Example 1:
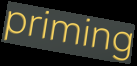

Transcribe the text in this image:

priming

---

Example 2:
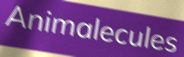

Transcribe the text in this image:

Animalecules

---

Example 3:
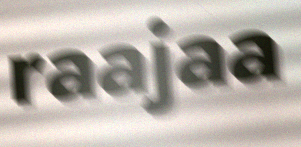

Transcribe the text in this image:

raajaa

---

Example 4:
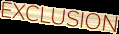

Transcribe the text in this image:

EXCLUSION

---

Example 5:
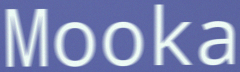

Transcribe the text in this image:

Mooka